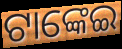
ଟାଙ୍କେଇ